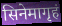
सिनेमागृहं